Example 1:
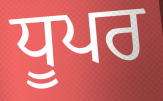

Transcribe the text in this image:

ਧੂਪਰ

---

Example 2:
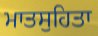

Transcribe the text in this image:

ਮਾਤਸੁਹਿਤਾ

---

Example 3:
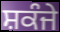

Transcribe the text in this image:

ਸ਼ਕੰਜੇ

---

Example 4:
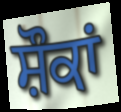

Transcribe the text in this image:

ਸ਼ੌਕਾਂ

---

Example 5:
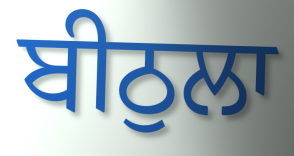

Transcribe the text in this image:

ਬੀਠੁਲਾ